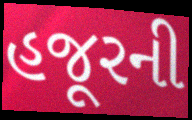
હજૂરની